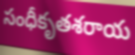
సంధీకృతశరాయ